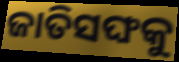
ଜାତିସଙ୍ଘକୁ